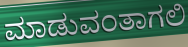
ಮಾಡುವಂತಾಗಲಿ